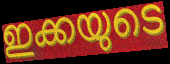
ഇക്കയുടെ